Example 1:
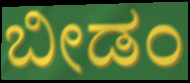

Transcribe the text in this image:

ಬೀಡಂ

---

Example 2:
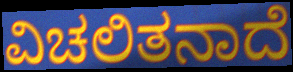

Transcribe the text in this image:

ವಿಚಲಿತನಾದೆ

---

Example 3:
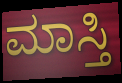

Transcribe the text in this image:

ಮಾಸ್ತಿ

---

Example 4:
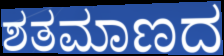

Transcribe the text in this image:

ಶತಮಾಣದ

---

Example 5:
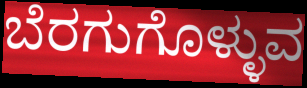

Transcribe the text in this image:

ಬೆರಗುಗೊಳ್ಳುವ